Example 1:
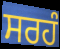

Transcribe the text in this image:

ਸਰਹੰ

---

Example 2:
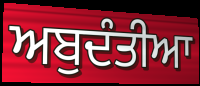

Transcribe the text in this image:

ਅਬੁਦੰਤੀਆ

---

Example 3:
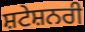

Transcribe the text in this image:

ਸ਼ਟੇਸ਼ਨਰੀ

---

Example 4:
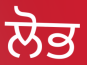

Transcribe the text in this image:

ਲੋਭ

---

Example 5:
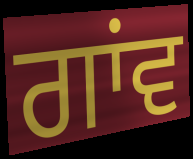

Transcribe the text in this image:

ਗਾਂਵ